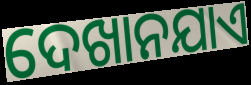
ଦେଖାନଯାଏ